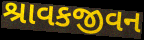
શ્રાવકજીવન